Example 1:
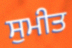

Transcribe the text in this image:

ਸੁਮੀਤ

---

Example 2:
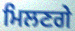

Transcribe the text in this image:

ਮਿਲਣਗੇ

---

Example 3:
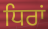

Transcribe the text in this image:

ਧਿਰਾਂ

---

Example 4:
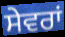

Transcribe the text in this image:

ਸੇਵਰਾਂ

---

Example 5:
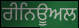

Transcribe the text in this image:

ਰੀਨਿਊਅਲ